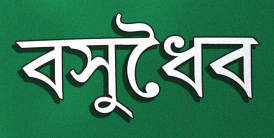
বসুধৈব